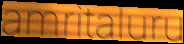
amritaluru